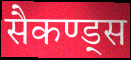
सैकण्ड्स